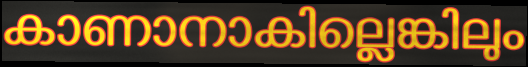
കാണാനാകില്ലെങ്കിലും